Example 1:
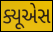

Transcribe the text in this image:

ક્યૂએસ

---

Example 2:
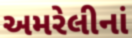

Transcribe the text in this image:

અમરેલીનાં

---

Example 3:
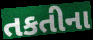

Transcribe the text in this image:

તકતીના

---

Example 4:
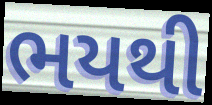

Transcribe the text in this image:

ભયથી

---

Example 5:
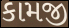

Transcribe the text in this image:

કામજી